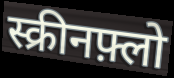
स्क्रीनफ़्लो